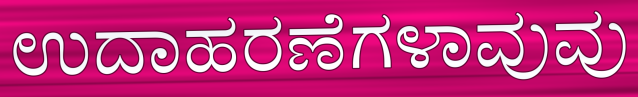
ಉದಾಹರಣೆಗಳಾವುವು